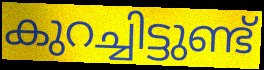
കുറച്ചിട്ടുണ്ട്